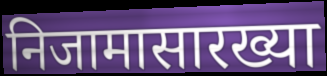
निजामासारख्या